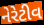
નેરેટીવ